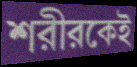
শরীরকেই